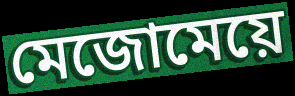
মেজোমেয়ে